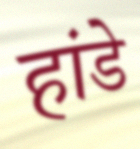
हांडे